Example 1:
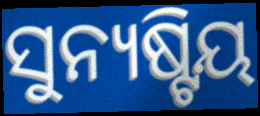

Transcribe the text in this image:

ସୁନ୍ୟଷ୍ଟିୟ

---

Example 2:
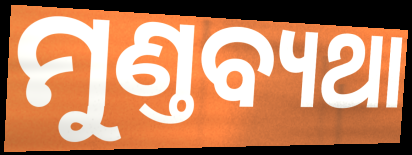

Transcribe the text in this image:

ମୁଣ୍ତବ୍ୟଥା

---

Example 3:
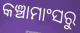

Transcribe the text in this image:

କଞ୍ଚାମାଂସରୁ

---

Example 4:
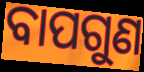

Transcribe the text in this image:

ବାପଗୁଣ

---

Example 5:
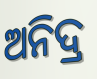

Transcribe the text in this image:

ଅନିଦ୍ର